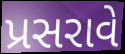
પ્રસરાવે